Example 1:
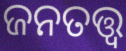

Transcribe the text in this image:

ଜନତତ୍ତ୍ୱ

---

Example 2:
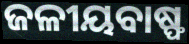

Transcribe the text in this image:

ଜଳୀୟବାଷ୍ଫ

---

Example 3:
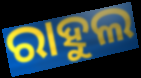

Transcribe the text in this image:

ରାହୁଲ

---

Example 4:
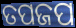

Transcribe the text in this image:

ତପଜପ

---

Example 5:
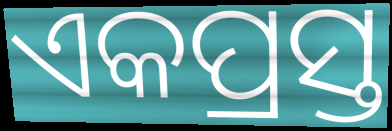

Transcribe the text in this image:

ଏକପ୍ରସ୍ତ